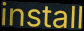
install